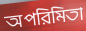
অপরিমিতা